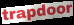
trapdoor